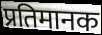
प्रतिमानक